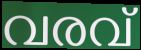
വരവ്